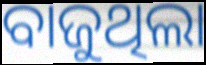
ବାଜୁଥିଲା